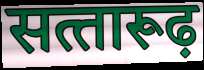
सत्‍तारूढ़